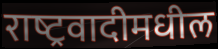
राष्ट्रवादीमधील